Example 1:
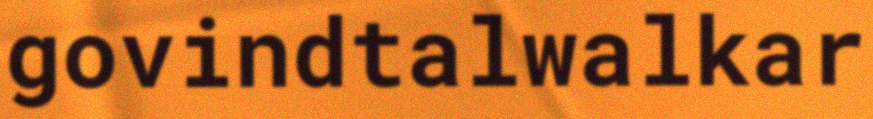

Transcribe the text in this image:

govindtalwalkar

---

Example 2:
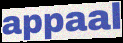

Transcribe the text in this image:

appaal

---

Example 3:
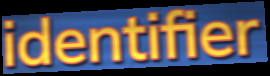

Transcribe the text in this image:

identifier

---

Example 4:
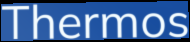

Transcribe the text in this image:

Thermos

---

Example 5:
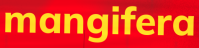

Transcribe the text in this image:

mangifera